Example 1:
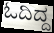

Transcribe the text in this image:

ಓದಿದ್ದ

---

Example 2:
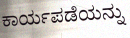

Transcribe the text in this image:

ಕಾರ್ಯಪಡೆಯನ್ನು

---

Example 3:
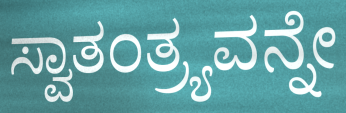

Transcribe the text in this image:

ಸ್ವಾತಂತ್ರ್ಯವನ್ನೇ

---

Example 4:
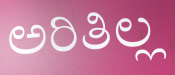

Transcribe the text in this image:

ಅರಿತಿಲ್ಲ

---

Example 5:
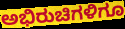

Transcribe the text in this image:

ಅಭಿರುಚಿಗಳಿಗೂ